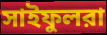
সাইফুলরা